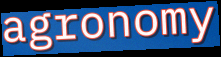
agronomy